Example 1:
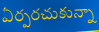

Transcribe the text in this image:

ఏర్పరచుకున్నా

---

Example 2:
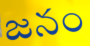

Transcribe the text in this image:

జనం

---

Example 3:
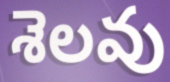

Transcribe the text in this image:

శెలవు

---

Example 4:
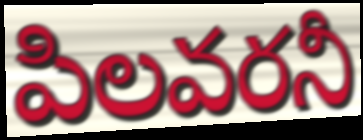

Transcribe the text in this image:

పిలవరనీ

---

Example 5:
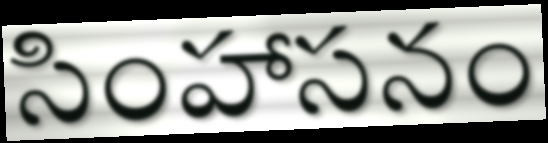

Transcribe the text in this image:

సింహాసనం